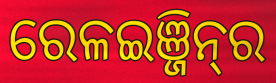
ରେଳଇଞ୍ଜିନ୍‌ର